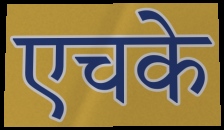
एचके